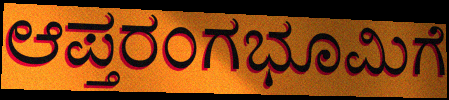
ಆಪ್ತರಂಗಭೂಮಿಗೆ